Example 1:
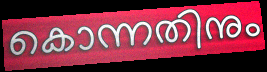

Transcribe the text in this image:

കൊന്നതിനും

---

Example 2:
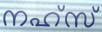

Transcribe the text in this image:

നഹ്സ്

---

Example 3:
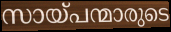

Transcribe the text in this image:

സായ്പന്മാരുടെ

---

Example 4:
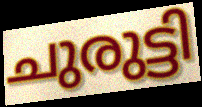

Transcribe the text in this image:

ചുരുട്ടി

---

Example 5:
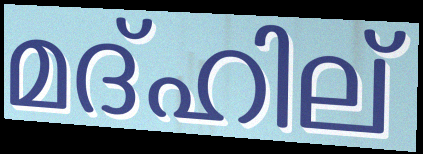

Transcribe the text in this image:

മദ്ഹില്